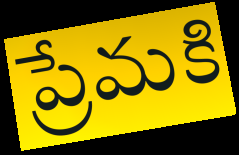
ప్రేమకి